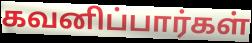
கவனிப்பார்கள்